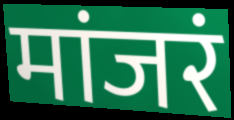
मांजरं